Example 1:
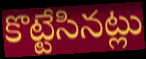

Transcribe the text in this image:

కొట్టేసినట్లు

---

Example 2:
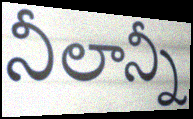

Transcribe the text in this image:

నీలాన్నీ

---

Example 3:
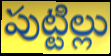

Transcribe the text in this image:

పుట్టిల్లు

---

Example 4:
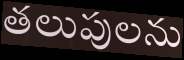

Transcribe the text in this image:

తలుపులను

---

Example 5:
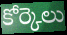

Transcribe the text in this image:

కోర్కెలు